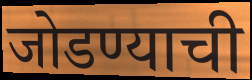
जोडण्याची